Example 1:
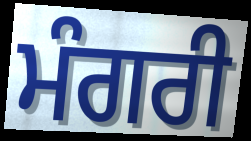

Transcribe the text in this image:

ਮੰਗਰੀ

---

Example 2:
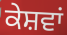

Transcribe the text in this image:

ਕੇਸ਼ਵਾਂ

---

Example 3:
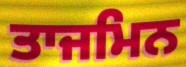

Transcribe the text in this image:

ਤਾਜਮਿਨ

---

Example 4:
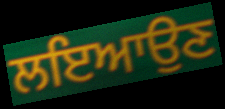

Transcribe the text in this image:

ਲਇਆਉਣ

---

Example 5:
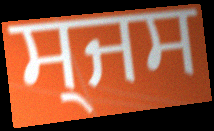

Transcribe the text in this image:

ਸ੍ਜਸ